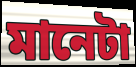
মানেটা